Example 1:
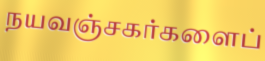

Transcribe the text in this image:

நயவஞ்சகர்களைப்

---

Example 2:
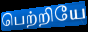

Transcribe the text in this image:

பெற்றியே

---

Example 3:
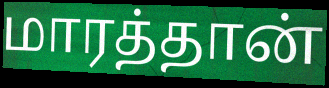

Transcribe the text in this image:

மாரத்தான்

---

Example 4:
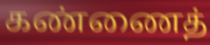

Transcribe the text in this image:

கண்ணைத்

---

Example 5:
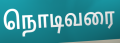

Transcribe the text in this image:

நொடிவரை